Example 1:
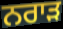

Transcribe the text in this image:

ਨਰਾੜ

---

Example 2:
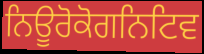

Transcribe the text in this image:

ਨਿਊਰੋਕੋਗਨਿਟਿਵ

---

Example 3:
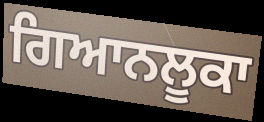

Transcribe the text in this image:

ਗਿਆਨਲੂਕਾ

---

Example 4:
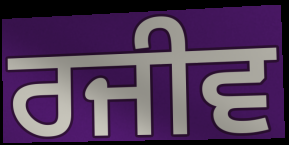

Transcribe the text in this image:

ਰਜੀਵ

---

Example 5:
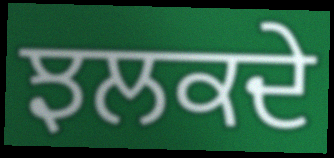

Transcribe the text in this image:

ਝਲਕਦੇ